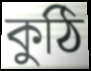
কুঠি